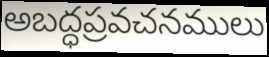
అబద్ధప్రవచనములు